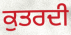
ਕੁਤਰਦੀ